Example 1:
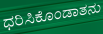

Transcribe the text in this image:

ಧರಿಸಿಕೊಂಡಾತನು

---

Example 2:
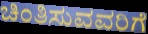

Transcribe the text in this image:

ಚಿಂತಿಸುವವರಿಗೆ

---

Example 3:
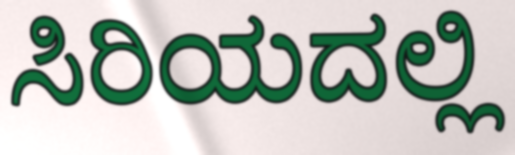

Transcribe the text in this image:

ಸಿರಿಯದಲ್ಲಿ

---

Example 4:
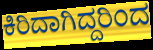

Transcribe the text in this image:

ಕಿರಿದಾಗಿದ್ದರಿಂದ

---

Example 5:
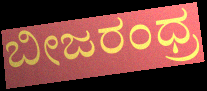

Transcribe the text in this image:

ಬೀಜರಂಧ್ರ